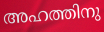
അഹത്തിനു